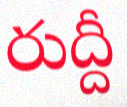
రుద్దీ